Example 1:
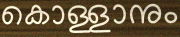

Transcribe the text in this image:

കൊള്ളാനും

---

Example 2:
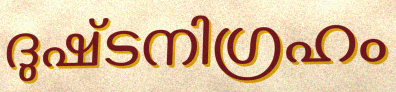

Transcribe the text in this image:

ദുഷ്‌ടനിഗ്രഹം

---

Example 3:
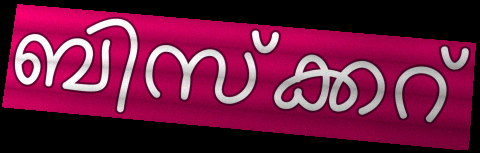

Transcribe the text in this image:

ബിസ്ക്കറ്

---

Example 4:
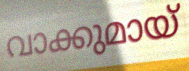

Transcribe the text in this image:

വാക്കുമായ്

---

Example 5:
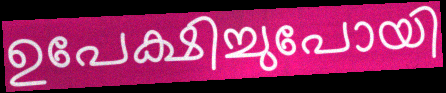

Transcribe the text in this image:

ഉപേക്ഷിച്ചുപോയി